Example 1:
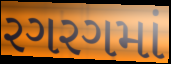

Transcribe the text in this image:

રગરગમાં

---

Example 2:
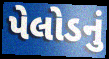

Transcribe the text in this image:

પેલોડનું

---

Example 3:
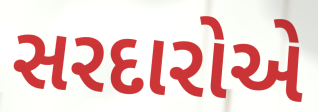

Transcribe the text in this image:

સરદારોએ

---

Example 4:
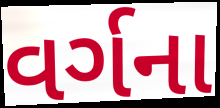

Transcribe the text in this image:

વર્ગના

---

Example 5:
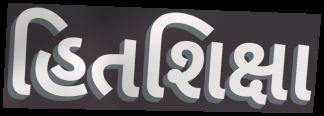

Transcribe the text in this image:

હિતશિક્ષા